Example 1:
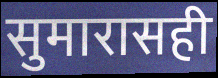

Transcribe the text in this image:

सुमारासही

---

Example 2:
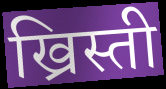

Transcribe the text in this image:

ख्रिस्ती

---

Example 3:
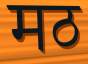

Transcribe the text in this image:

मठ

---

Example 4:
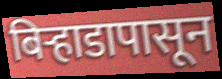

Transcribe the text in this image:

बिऱ्हाडापासून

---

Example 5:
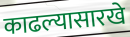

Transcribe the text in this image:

काढल्यासारखे